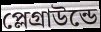
প্লেগ্রাউন্ডে